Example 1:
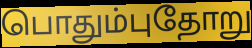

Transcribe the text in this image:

பொதும்புதோறு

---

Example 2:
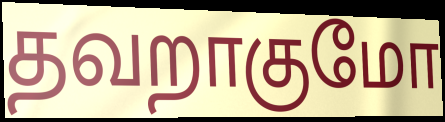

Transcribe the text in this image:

தவறாகுமோ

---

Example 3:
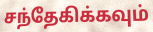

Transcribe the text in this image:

சந்தேகிக்கவும்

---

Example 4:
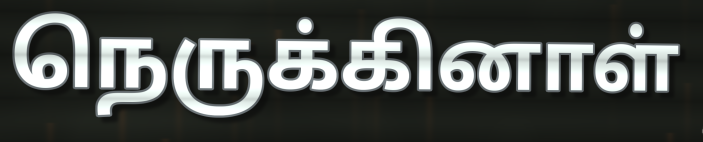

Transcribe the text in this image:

நெருக்கினாள்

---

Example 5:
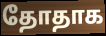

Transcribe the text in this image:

தோதாக